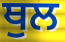
ਥੁਲ